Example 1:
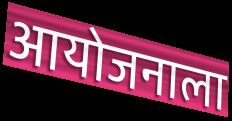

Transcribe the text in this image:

आयोजनाला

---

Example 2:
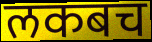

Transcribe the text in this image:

लकबच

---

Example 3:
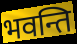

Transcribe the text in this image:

भवन्ति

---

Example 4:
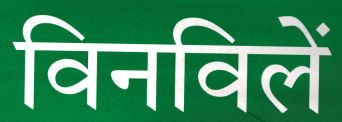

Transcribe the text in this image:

विनविलें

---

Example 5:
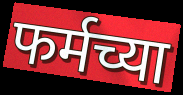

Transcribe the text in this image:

फर्मच्या